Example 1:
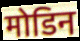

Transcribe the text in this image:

मोडिन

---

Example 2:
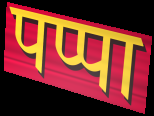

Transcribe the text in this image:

पप्‍पा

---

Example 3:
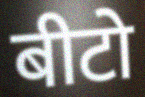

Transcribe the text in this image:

बीटो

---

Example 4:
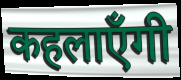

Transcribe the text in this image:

कहलाएँगी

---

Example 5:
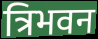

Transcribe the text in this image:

त्रिभवन